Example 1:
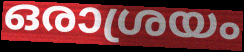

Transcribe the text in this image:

ഒരാശ്രയം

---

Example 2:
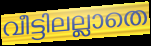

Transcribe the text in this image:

വീട്ടിലല്ലാതെ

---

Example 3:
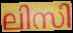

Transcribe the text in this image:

ലിസി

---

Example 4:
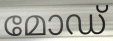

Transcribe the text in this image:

മോഡ്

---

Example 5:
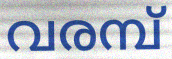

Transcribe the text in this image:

വരമ്പ്